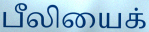
பீலியைக்